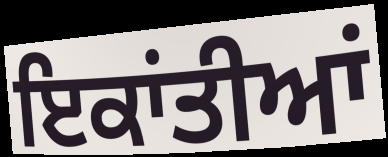
ਇਕਾਂਤੀਆਂ